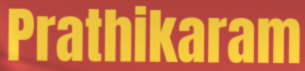
Prathikaram